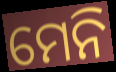
ମେନି